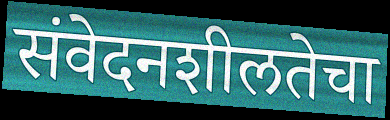
संवेदनशीलतेचा